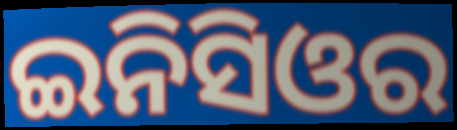
ଇନିସିଓର